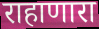
राहाणारा